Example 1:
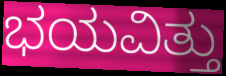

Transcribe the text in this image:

ಭಯವಿತ್ತು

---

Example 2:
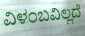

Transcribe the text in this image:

ವಿಳಂಬವಿಲ್ಲದೆ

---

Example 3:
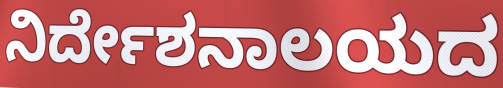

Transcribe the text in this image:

ನಿರ್ದೇಶನಾಲಯದ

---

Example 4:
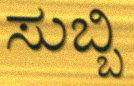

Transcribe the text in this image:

ಸುಬ್ಬಿ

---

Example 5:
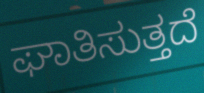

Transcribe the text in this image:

ಘಾತಿಸುತ್ತದೆ